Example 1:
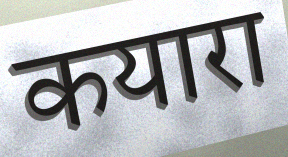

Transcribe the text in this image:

कयारा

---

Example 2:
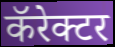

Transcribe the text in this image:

कॅरेक्टर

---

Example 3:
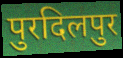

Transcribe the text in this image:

पुरदिलपुर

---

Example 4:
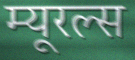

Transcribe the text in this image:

म्यूरल्स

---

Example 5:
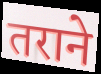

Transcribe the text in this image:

तराने